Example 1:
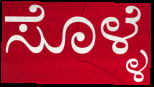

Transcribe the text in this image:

ಸೊಳ್ಳೆ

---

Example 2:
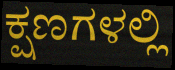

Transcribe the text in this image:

ಕ್ಷಣಗಳಲ್ಲಿ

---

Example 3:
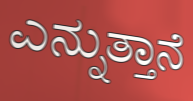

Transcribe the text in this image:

ಎನ್ನುತ್ತಾನೆ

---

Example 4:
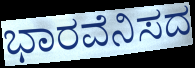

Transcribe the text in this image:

ಭಾರವೆನಿಸದ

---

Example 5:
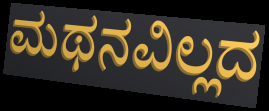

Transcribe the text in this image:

ಮಥನವಿಲ್ಲದ